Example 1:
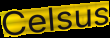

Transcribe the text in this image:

Celsus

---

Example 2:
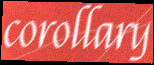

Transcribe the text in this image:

corollary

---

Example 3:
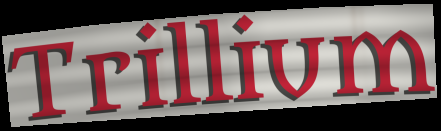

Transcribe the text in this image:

Trillium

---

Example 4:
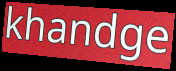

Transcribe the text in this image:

khandge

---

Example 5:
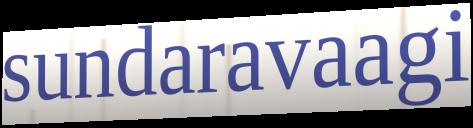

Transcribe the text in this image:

sundaravaagi